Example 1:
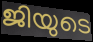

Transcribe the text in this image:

ജിയുടെ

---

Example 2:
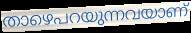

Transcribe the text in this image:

താഴെപറയുന്നവയാണ്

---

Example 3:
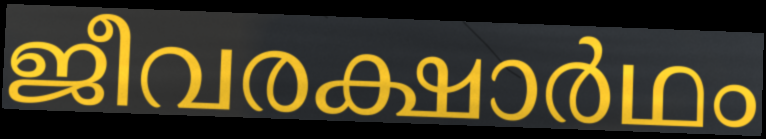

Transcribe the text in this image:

ജീവരക്ഷാർഥം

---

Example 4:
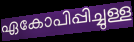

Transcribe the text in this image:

ഏകോപിപ്പിച്ചുള്ള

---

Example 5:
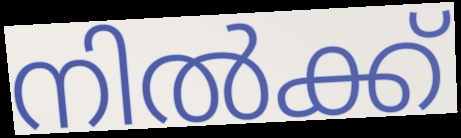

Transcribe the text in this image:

നിൽക്ക്